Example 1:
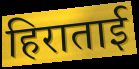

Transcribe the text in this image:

हिराताई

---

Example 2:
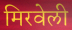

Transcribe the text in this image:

मिरवेली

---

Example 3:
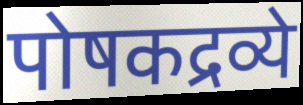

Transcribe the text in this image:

पोषकद्रव्ये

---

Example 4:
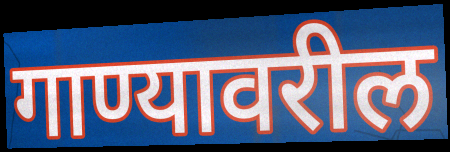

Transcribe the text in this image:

गाण्यावरील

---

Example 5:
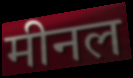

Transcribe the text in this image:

मीनल